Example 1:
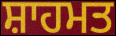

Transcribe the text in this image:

ਸ਼ਾਹਮਤ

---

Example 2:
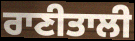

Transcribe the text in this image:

ਰਾਣੀਤਾਲੀ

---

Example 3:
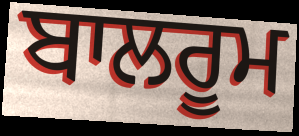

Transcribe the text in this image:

ਬਾਲਰੂਮ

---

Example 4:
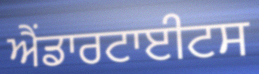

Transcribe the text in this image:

ਐਂਡਾਰਟਾਈਟਸ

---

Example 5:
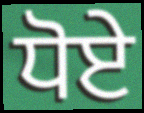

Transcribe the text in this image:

ਧੋਏ